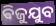
ଵିଜୁଯୁବ